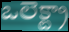
ఒలెక్ట్రా